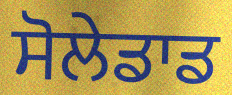
ਸੋਲੇਡਾਡ